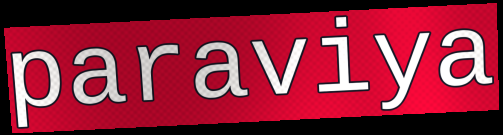
paraviya